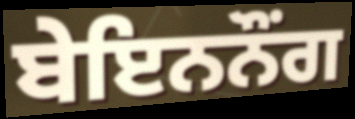
ਬੇਇਨਨੌੰਗ